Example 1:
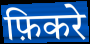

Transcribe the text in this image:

फ़िकरे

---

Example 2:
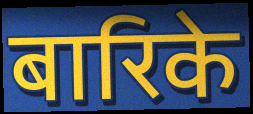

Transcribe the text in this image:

बारिके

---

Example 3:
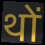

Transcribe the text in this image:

थों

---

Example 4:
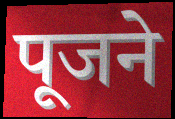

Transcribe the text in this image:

पूजने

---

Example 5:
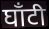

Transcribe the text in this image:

घाँटी